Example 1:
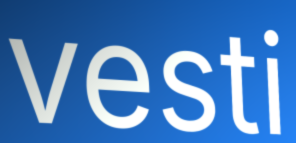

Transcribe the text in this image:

vesti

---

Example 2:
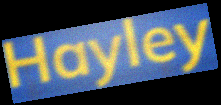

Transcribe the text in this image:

Hayley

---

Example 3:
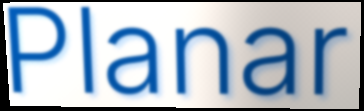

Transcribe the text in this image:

Planar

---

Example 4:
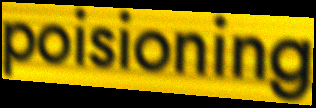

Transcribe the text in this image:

poisioning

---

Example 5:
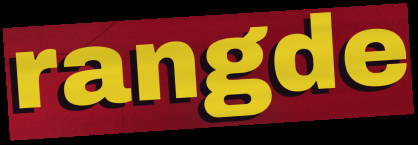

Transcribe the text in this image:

rangde